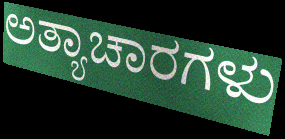
ಅತ್ಯಾಚಾರಗಳು